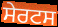
ਸੇਰਟਸ